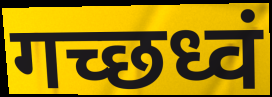
गच्छध्वं